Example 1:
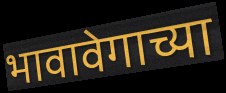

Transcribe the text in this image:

भावावेगाच्या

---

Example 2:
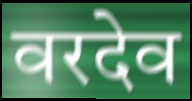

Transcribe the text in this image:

वरदेव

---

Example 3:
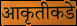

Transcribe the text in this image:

आकृतीकडे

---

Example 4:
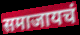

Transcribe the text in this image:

समाजायचं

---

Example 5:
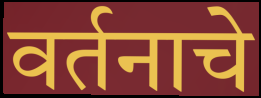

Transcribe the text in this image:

वर्तनाचे